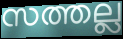
സത്തല്ല